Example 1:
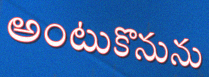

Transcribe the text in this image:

అంటుకొనును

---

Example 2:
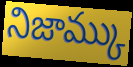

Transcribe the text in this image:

నిజామ్కు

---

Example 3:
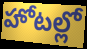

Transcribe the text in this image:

హోటల్లో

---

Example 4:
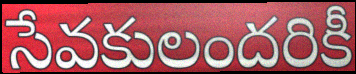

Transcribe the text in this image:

సేవకులందరికీ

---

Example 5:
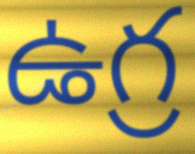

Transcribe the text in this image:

ఉగ్ర